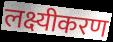
लक्ष्यीकरण